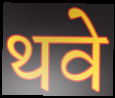
थवे